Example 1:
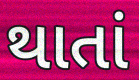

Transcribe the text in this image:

થાતાં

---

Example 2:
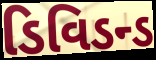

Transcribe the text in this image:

ડિવિડન્ડ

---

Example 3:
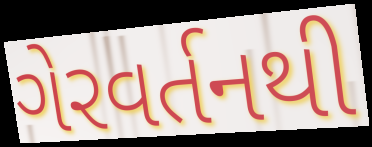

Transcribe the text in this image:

ગેરવર્તનથી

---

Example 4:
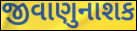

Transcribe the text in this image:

જીવાણુનાશક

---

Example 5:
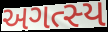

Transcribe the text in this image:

અગત્સ્ય